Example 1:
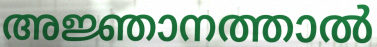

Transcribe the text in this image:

അജ്ഞാനത്താൽ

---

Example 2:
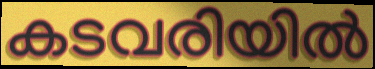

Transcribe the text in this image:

കടവരിയിൽ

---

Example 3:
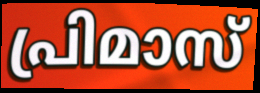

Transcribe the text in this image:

പ്രിമാസ്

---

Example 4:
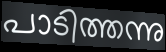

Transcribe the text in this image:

പാടിത്തന്നു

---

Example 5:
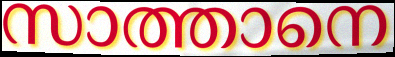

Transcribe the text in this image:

സാത്താനെ